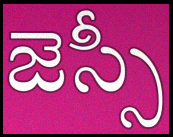
జెస్సీ